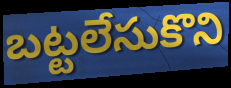
బట్టలేసుకొని